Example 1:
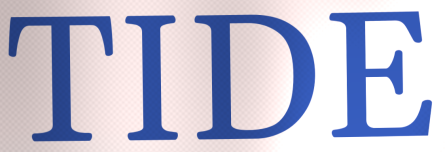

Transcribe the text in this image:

TIDE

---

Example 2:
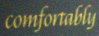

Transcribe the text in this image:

comfortably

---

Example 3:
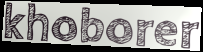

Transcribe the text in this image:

khoborer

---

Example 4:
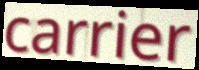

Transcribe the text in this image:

carrier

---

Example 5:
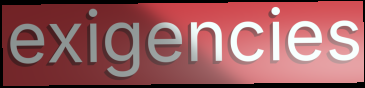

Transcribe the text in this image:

exigencies